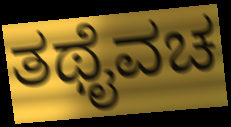
ತಥೈವಚ